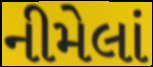
નીમેલાં